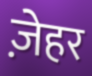
ज़ेहर